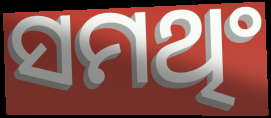
ସମଥିଂ